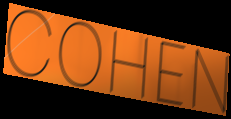
COHEN